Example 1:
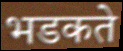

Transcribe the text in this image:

भडकते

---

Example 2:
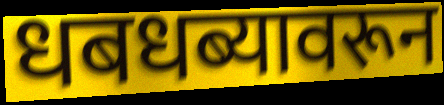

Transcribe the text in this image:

धबधब्यावरून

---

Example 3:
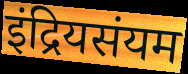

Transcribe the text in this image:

इंद्रियसंयम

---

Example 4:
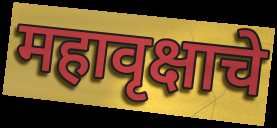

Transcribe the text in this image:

महावृक्षाचे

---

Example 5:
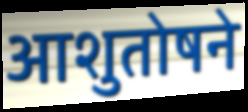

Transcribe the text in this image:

आशुतोषने